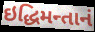
ઇદ્ધિમન્તાનં